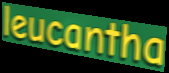
leucantha